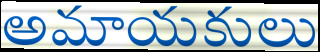
అమాయకులు